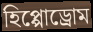
হিপ্পোড্রোম